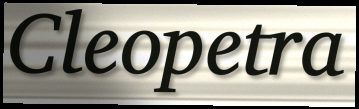
Cleopetra